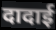
दादाई